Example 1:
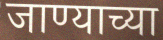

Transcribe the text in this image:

जाण्याच्या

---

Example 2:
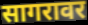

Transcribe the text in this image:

सागरावर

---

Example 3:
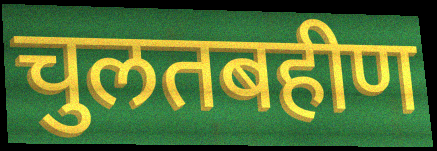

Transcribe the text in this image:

चुलतबहीण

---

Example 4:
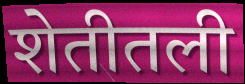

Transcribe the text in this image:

शेतीतली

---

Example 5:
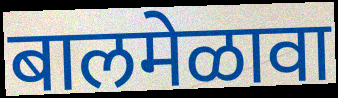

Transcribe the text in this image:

बालमेळावा